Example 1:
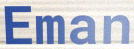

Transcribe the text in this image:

Eman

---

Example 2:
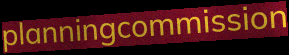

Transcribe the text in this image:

planningcommission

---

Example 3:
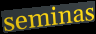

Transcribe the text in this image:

seminas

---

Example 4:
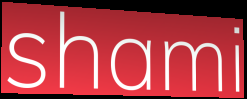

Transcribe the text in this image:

shami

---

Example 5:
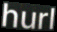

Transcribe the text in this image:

hurl